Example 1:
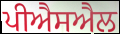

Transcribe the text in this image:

ਪੀਐਸਐਲ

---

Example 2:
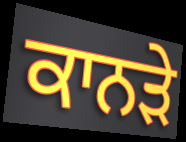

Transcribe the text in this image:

ਕਾਨੜੇ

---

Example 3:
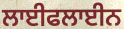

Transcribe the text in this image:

ਲਾਈਫਲਾਈਨ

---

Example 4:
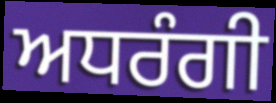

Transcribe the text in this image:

ਅਧਰੰਗੀ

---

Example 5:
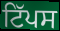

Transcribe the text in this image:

ਟਿੱਪਸ